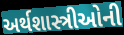
અર્થશાસ્ત્રીઓની